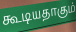
கூடியதாகும்